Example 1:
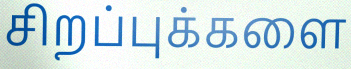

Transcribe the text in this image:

சிறப்புக்களை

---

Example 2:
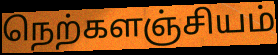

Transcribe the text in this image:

நெற்களஞ்சியம்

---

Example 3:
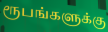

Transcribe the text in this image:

ரூபங்களுக்கு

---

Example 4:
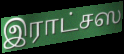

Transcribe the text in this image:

இராட்சஸ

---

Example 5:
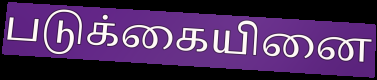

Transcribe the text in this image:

படுக்கையினை